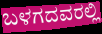
ಬಳಗದವರಲ್ಲಿ